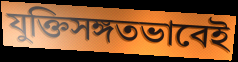
যুক্তিসঙ্গতভাবেই